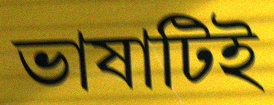
ভাষাটিই